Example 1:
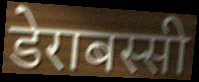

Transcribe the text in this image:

डेराबस्सी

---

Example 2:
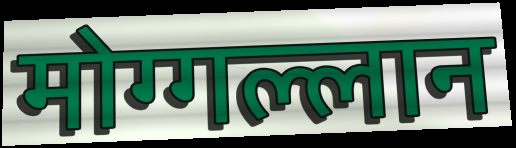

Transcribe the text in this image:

मोग्गल्लान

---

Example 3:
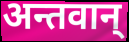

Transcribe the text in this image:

अन्तवान्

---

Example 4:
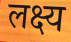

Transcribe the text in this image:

लक्ष्‍य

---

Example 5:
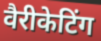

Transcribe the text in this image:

वैरीकेटिंग